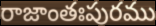
రాజాంతఃపురము